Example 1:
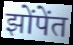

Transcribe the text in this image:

झोंपेंत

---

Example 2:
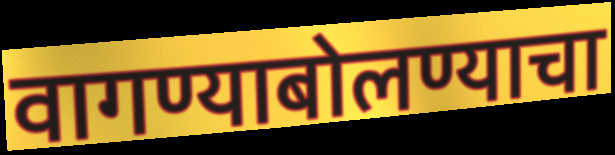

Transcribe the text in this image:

वागण्याबोलण्याचा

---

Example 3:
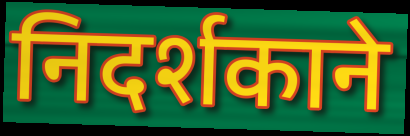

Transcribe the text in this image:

निदर्शकाने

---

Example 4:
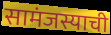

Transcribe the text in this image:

सामंजस्याची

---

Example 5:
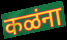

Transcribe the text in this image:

कळंना